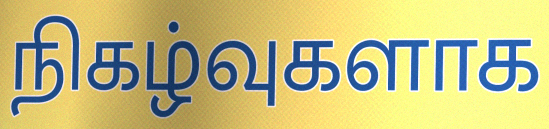
நிகழ்வுகளாக